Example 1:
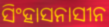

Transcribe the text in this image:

ସିଂହାସନାସୀନ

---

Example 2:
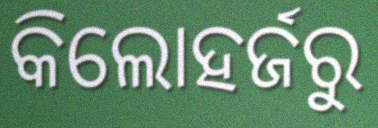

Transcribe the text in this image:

କିଲୋହର୍ଜରୁ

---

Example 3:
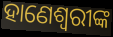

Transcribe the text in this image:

ହାଣେଶ୍ୱରୀଙ୍କ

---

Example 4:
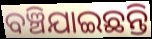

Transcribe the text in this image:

ବଞ୍ଚିଯାଇଛନ୍ତି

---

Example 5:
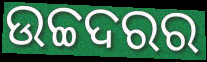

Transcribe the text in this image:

ଉଚ୍ଚଦରର